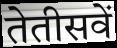
तेतीसवें